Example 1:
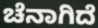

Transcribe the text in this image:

ಚೆನಾಗಿದೆ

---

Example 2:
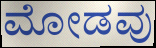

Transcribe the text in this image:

ಮೋಡವು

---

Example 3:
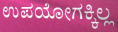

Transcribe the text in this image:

ಉಪಯೋಗಕ್ಕಿಲ್ಲ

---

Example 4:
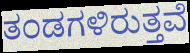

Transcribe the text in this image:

ತಂಡಗಳಿರುತ್ತವೆ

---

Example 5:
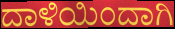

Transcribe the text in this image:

ದಾಳಿಯಿಂದಾಗಿ